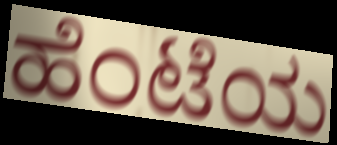
ಹೆಂಟೆಯ